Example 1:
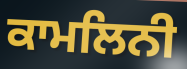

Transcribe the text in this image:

ਕਾਮਲਿਨੀ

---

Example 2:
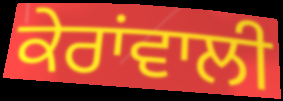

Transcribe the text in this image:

ਕੇਰਾਂਵਾਲੀ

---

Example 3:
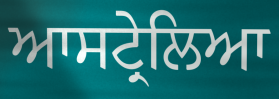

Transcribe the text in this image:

ਆਸਟ੍ਰੇਲਿਆ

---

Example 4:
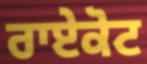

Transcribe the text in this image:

ਰਾਏਕੋਟ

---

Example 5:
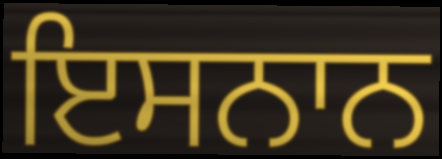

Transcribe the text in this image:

ਇਸਨਾਨ